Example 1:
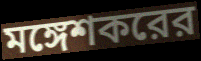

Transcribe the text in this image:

মঙ্গেশকরের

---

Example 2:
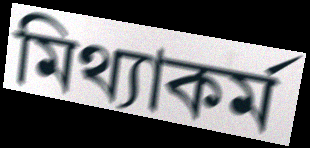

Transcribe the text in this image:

মিথ্যাকর্ম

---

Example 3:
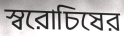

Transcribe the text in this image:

স্বরোচিষের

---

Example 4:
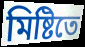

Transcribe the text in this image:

মিষ্টিতে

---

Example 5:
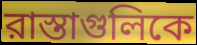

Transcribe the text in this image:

রাস্তাগুলিকে